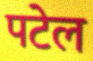
पटेल